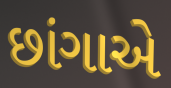
છાંગાએ